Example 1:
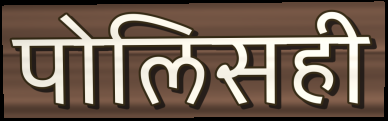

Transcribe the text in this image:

पोलिसही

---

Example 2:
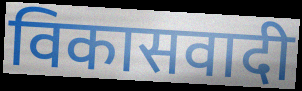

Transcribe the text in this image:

विकासवादी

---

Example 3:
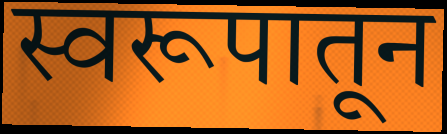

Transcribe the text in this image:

स्वरूपातून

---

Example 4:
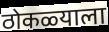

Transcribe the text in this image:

ठोकळ्याला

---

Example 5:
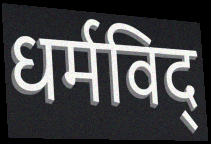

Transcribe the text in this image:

धर्मविद्